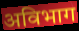
अविभाग